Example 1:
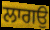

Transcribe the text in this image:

ਲਾਗਉ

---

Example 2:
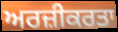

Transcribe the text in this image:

ਅਰਜ਼ੀਕਰਤਾ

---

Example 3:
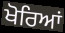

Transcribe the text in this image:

ਖੋਰਿਆਂ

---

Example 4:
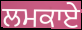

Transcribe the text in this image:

ਲਮਕਾਏ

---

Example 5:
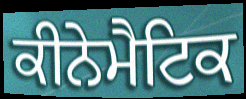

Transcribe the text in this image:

ਕੀਨੇਮੈਟਿਕ